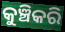
କୁଞ୍ଚିକରି